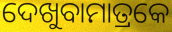
ଦେଖୁବାମାତ୍ରକେ